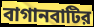
বাগানবাটির